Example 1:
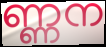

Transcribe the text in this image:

ണ്ണന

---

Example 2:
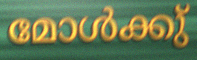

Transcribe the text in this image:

മോൾക്കു്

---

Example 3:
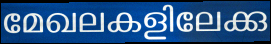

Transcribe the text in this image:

മേഖലകളിലേക്കു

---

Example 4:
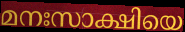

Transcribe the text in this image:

മനഃസാക്ഷിയെ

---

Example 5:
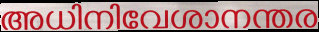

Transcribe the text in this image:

അധിനിവേശാനന്തര